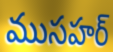
ముసహర్